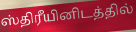
ஸ்திரீயினிடத்தில்